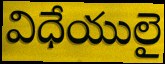
విధేయులై